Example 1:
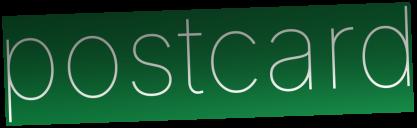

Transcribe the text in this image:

postcard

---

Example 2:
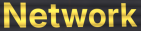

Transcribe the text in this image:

Network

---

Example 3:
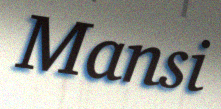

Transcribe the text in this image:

Mansi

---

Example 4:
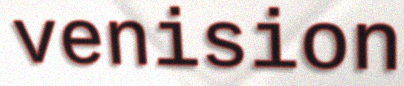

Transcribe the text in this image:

venision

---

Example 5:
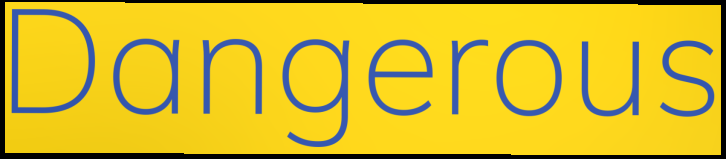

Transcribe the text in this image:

Dangerous